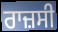
ਰਾਜ਼ਸੀ